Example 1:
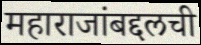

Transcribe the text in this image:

महाराजांबद्दलची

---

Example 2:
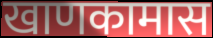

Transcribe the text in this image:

खाणकामास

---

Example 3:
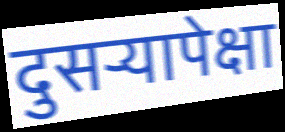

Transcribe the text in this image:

दुसऱ्यापेक्षा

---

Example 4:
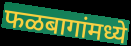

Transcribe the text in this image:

फळबागांमध्ये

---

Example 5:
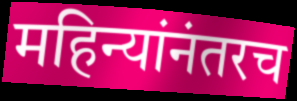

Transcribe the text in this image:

महिन्यांनंतरच